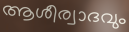
ആശീര്വാദവും